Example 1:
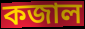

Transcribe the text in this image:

কজাল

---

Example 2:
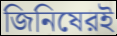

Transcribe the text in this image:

জিনিষেরই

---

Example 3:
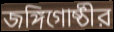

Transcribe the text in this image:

জঙ্গিগোষ্ঠীর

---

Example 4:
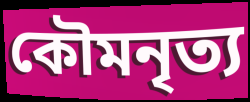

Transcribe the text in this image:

কৌমনৃত্য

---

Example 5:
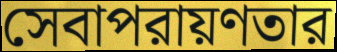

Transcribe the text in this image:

সেবাপরায়ণতার